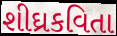
શીઘ્રકવિતા